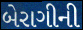
બેરાગીની